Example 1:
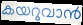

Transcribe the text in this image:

കയറുവാൻ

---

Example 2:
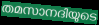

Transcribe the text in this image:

തമസാനദിയുടെ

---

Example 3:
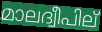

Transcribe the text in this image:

മാലദ്വീപില്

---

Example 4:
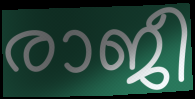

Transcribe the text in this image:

രാജീ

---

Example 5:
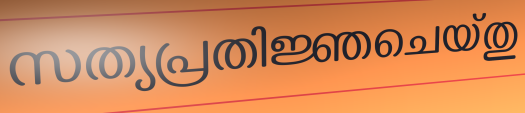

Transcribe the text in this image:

സത്യപ്രതിജ്ഞചെയ്തു